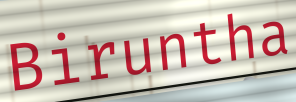
Biruntha